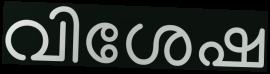
വിശേഷ